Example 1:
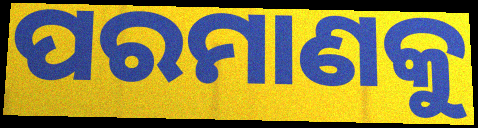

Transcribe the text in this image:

ପରମାଣକୁ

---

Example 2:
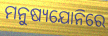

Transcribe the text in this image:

ମନୁଷ୍ୟଯୋନିରେ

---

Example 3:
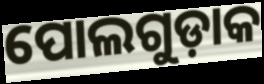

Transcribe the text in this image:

ପୋଲଗୁଡ଼ାକ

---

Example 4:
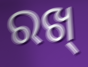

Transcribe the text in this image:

ରଖ୍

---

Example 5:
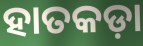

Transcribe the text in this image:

ହାତକଡ଼ା